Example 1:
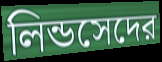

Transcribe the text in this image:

লিন্ডসেদের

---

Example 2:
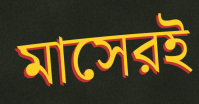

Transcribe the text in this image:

মাসেরই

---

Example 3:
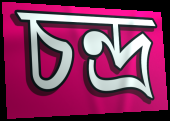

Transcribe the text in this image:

চন্দ্র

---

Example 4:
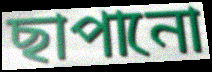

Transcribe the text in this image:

ছাপানো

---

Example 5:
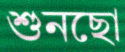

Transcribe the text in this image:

শুনছো